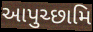
આપુચ્છામિ